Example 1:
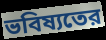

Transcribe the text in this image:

ভবিষ্যতের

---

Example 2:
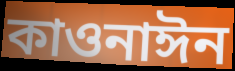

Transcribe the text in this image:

কাওনাঈন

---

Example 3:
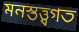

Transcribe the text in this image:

মনস্তত্ত্বগত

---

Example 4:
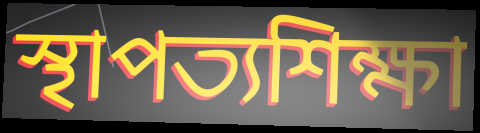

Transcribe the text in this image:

স্থাপত্যশিক্ষা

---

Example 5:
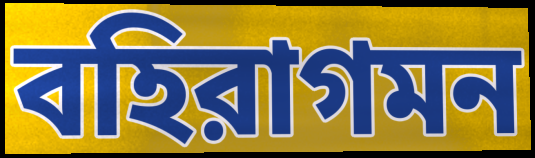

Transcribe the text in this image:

বহিরাগমন